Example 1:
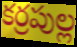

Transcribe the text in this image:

కర్రపుల్ల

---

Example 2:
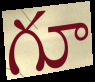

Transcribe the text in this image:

గూ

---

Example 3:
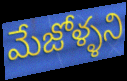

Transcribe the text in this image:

మేజోళ్ళని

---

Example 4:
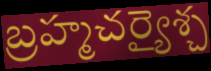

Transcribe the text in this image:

బ్రహ్మచర్యైశ్చ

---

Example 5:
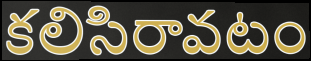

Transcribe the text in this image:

కలిసిరావటం